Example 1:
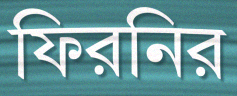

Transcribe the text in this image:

ফিরনির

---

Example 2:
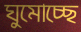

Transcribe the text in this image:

ঘুমোচ্ছে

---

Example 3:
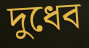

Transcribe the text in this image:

দুধেব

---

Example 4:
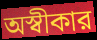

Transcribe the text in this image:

অস্বীকার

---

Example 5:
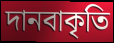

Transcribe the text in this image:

দানবাকৃতি